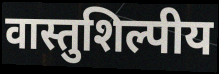
वास्तुशिल्पीय